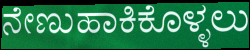
ನೇಣುಹಾಕಿಕೊಳ್ಳಲು